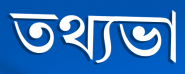
তথ্যভা